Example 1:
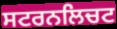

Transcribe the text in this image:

ਸਟਰਨਲਿਚਟ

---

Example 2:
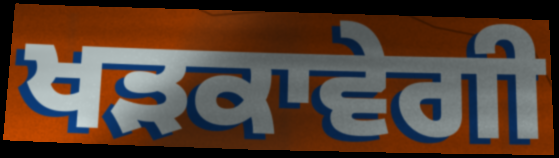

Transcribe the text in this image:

ਖੜਕਾਵੇਗੀ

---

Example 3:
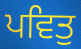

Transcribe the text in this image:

ਪਵਿਤੁ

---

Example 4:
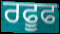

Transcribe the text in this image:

ਰਫੂਫ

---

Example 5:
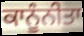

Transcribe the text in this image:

ਕਾਨੂੰਨੀਤਾ